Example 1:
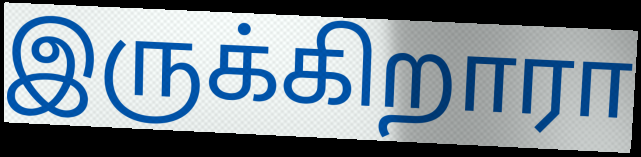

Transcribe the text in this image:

இருக்கிறாரா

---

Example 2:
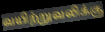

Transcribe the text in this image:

வயிற்றுவலிக்கு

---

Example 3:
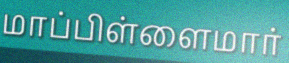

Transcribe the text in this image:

மாப்பிள்ளைமார்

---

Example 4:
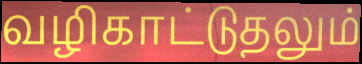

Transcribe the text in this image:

வழிகாட்டுதலும்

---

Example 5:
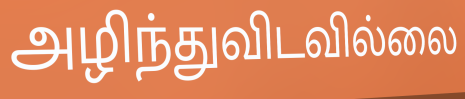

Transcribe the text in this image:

அழிந்துவிடவில்லை